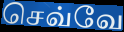
செவ்வே